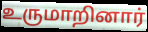
உருமாறினார்